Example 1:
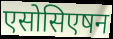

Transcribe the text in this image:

एसोसिएषन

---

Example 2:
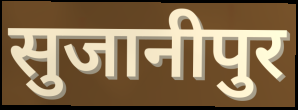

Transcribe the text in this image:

सुजानीपुर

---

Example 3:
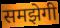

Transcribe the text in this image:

समझेगी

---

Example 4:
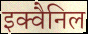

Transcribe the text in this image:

इक्वैनिल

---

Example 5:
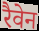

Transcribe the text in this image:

रैवेन